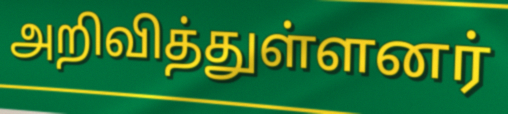
அறிவித்துள்ளனர்